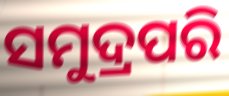
ସମୁଦ୍ରପରି